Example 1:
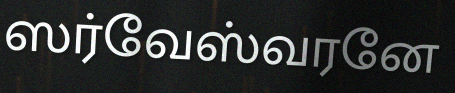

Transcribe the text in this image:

ஸர்வேஸ்வரனே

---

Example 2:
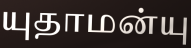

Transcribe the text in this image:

யுதாமன்யு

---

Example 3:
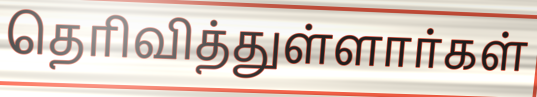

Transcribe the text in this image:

தெரிவித்துள்ளார்கள்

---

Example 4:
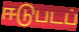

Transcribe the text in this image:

ஈடுபடப்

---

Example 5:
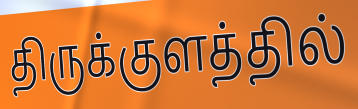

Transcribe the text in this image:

திருக்குளத்தில்